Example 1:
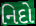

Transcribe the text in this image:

નિદો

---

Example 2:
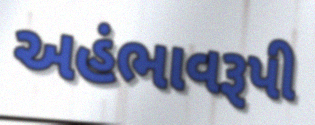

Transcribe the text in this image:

અહંભાવરૂપી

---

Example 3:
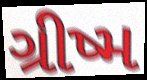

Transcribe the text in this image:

ગ્રીષ્મ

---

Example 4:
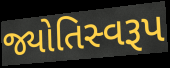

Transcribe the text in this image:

જ્યોતિસ્વરૂપ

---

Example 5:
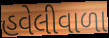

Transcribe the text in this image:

હવેલીવાળા